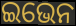
ଇଭେନ